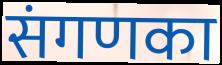
संगणका